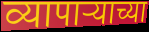
व्यापाऱ्याच्या